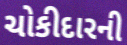
ચોકીદારની